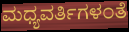
ಮಧ್ಯವರ್ತಿಗಳಂತೆ